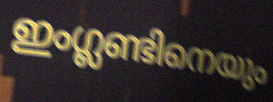
ഇംഗ്ലണ്ടിനെയും